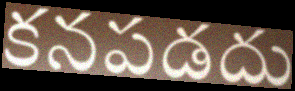
కనపడదు